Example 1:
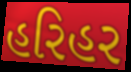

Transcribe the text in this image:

હરિહર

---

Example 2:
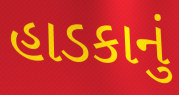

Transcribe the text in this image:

હાડકાનું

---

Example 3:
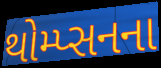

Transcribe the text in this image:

થોમ્પ્સનના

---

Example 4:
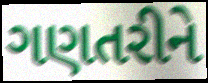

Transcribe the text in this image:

ગણતરીને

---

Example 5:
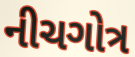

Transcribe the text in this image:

નીચગોત્ર